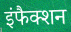
इंफैक्शन